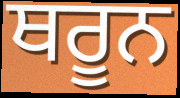
ਥਰੂਨ